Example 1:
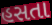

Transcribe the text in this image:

હસતા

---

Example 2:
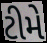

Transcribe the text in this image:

ટીમે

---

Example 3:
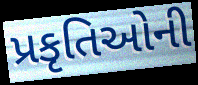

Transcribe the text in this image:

પ્રકૃતિઓની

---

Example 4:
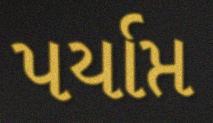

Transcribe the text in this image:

પર્યાપ્ત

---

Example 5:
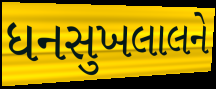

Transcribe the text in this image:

ધનસુખલાલને